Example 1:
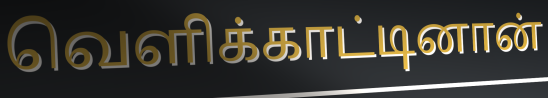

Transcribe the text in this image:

வெளிக்காட்டினான்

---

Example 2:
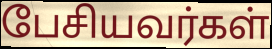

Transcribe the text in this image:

பேசியவர்கள்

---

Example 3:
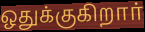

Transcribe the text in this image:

ஒதுக்குகிறார்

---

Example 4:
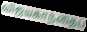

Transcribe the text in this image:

விஜயகாந்தைப்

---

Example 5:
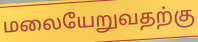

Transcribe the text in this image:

மலையேறுவதற்கு